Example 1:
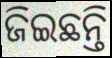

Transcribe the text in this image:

ଜିଇଛନ୍ତି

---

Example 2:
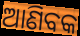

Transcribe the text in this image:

ଆଣିବକ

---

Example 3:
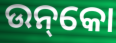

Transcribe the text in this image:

ଉନ୍‌କୋ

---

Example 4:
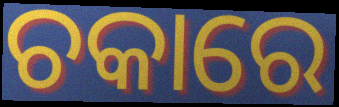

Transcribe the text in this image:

ଚକାରେ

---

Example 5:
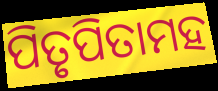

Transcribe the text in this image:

ପିତୃପିତାମହ